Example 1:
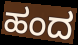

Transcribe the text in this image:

ಹಂದ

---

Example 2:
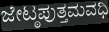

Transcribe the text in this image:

ಜೇಟ್ಠಪುತ್ತಮವಧಿ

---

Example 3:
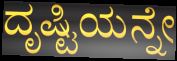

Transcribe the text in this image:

ದೃಷ್ಟಿಯನ್ನೇ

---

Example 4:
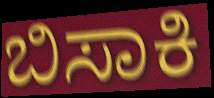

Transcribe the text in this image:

ಬಿಸಾಕಿ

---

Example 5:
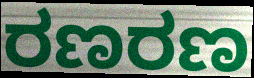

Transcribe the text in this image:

ರಣರಣ